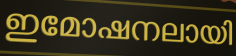
ഇമോഷനലായി